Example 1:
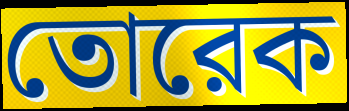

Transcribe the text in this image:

তোরেক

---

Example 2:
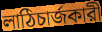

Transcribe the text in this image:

লাঠিচার্জকারী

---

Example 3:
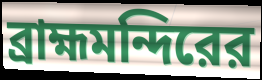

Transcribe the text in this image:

ব্রাহ্মমন্দিরের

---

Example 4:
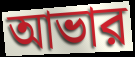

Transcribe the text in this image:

আভার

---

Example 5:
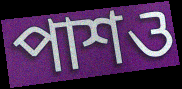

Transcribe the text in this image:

পাশও